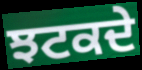
ਝਟਕਦੇ